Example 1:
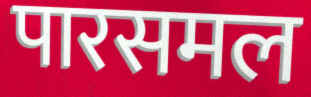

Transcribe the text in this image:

पारसमल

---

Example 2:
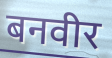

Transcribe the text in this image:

बनवीर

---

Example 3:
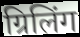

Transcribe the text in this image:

ग्रिलिंग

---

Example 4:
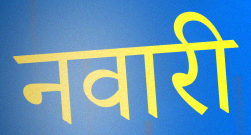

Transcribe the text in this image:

नवारी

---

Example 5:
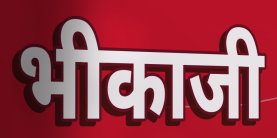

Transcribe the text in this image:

भीकाजी